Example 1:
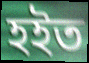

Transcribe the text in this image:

হইত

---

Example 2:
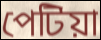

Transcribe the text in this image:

পেটিয়া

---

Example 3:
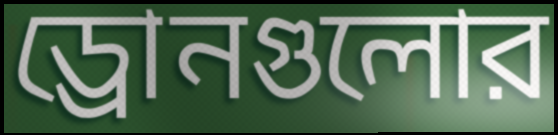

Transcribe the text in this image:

ড্রোনগুলোর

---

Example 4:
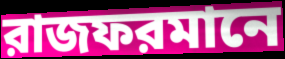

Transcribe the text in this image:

রাজফরমানে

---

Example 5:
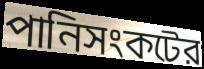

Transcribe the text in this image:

পানিসংকটের